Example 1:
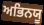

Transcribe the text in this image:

ਅਭਿਨਯੂ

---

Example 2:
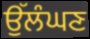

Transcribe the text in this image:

ਉੱਲੰਘਣ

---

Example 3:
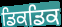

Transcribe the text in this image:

ਡਿਕਡਿਕ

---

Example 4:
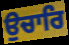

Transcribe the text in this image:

ਉਚਾਰਿ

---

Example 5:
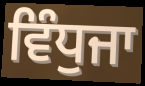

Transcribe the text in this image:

ਵਿੰਧੁਜਾ